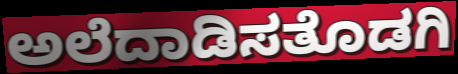
ಅಲೆದಾಡಿಸತೊಡಗಿ